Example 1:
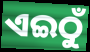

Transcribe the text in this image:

ଏଇଠୁଁ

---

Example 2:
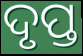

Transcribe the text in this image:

ଦୃପ୍ତ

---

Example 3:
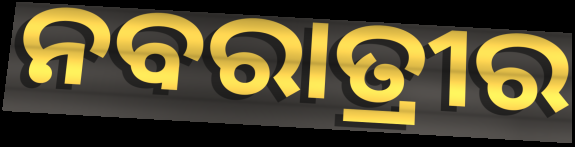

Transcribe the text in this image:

ନବରାତ୍ରୀର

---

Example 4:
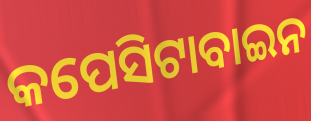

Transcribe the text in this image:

କପେସିଟାବାଇନ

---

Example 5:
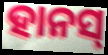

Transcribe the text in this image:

ହାନସ୍